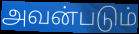
அவன்படும்